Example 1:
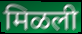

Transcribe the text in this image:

मिळली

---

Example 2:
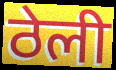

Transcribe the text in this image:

ठेली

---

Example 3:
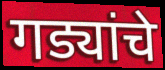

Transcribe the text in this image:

गड्यांचे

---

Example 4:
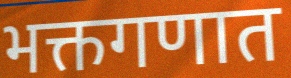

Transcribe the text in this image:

भक्तगणात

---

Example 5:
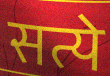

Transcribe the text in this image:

सत्ये